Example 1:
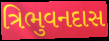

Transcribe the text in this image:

ત્રિભુવનદાસ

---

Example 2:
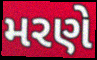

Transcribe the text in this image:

મરણે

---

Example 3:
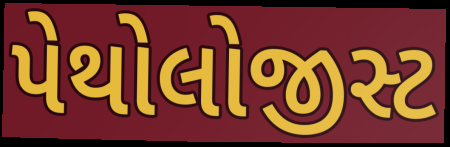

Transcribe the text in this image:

પેથોલોજીસ્ટ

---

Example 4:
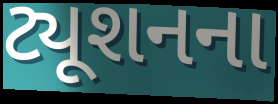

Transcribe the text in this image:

ટ્યૂશનના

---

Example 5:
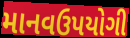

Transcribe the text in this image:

માનવઉપયોગી